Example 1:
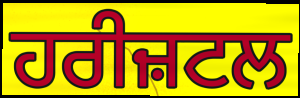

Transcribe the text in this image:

ਹਰੀਜ਼ਟਲ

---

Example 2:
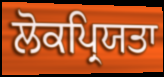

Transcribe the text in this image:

ਲੋਕਪ੍ਰਿਯਤਾ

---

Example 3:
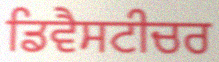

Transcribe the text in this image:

ਡਿਵੈਸਟੀਚਰ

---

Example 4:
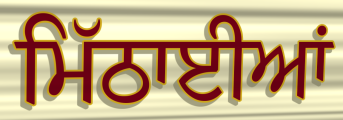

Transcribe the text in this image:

ਮਿੱਠਾਈਆਂ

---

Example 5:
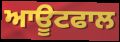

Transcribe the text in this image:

ਆਊਟਫਾਲ